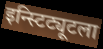
इन्स्टिट्यूटला